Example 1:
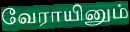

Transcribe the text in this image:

வேராயினும்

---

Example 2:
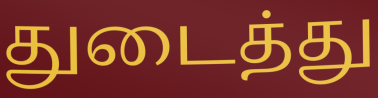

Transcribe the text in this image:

துடைத்து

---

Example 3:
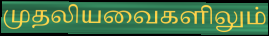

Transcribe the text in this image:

முதலியவைகளிலும்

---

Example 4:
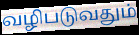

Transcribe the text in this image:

வழிபடுவதும்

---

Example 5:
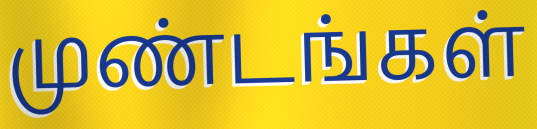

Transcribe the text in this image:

முண்டங்கள்